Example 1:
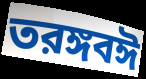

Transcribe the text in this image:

তরঙ্গবঈ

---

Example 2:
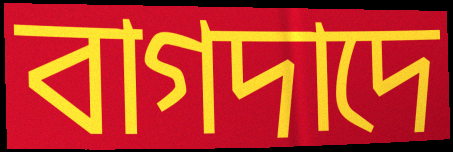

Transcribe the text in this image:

বাগদাদে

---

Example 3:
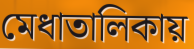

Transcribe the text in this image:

মেধাতালিকায়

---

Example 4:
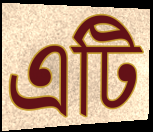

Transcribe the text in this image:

এটি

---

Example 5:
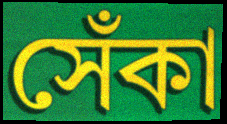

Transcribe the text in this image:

সেঁকা